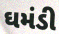
ઘમંડી